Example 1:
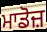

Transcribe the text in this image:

ਮਾਡੋਜ਼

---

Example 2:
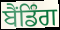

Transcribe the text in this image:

ਬੈਂਡਿੰਗ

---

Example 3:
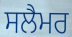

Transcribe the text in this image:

ਸਲੈਮਰ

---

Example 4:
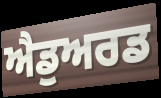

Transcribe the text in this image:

ਐਡੁਅਰਡ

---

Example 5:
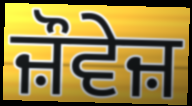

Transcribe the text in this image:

ਜ਼ੌਵੇਜ਼